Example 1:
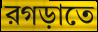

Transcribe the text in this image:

রগড়াতে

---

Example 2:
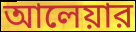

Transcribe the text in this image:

আলেয়ার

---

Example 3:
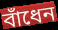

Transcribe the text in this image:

বাঁধেন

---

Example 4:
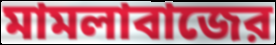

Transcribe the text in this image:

মামলাবাজের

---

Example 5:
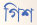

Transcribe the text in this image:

গিশ